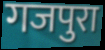
गजपुरा